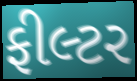
ફીલ્ટર